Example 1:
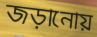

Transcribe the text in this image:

জড়ানোয়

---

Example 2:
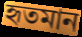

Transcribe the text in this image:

হৃতমান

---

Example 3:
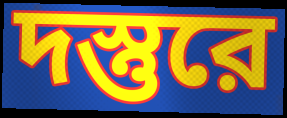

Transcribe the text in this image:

দস্তুরে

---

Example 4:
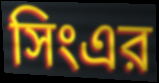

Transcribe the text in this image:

সিংএর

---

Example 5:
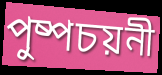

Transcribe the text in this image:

পুষ্পচয়নী